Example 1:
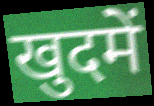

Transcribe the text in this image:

खुदमें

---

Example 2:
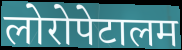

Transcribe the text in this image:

लोरोपेटालम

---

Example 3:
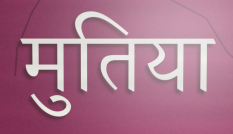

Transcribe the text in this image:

मुतिया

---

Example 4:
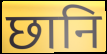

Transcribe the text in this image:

छानि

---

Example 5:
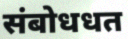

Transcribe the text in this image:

संबोधधत